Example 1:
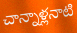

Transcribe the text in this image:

చాన్నాళ్లనాటి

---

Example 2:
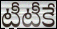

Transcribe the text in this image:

టీటీకే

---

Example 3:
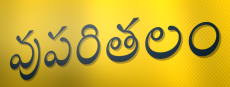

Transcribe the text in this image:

వుపరితలం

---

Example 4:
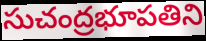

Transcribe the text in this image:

సుచంద్రభూపతిని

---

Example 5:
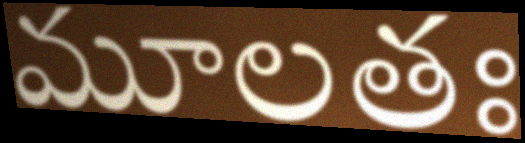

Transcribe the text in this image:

మూలతః